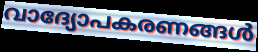
വാദ്യോപകരണങ്ങൾ